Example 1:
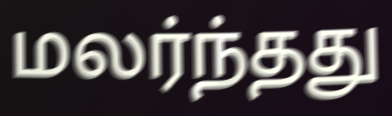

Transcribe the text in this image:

மலர்ந்தது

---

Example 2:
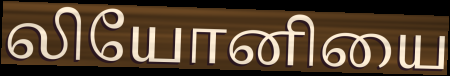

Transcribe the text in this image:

லியோனியை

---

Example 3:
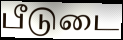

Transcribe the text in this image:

பீடுடை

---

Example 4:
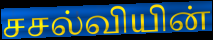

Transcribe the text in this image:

சசல்வியின்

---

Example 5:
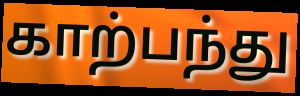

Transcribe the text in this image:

காற்பந்து